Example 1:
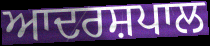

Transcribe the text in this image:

ਆਦਰਸ਼ਪਾਲ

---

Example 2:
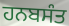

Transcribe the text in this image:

ਹਨਬਸੰਤ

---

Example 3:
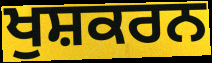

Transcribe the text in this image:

ਖੁਸ਼ਕਰਨ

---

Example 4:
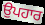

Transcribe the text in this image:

ਉਪਹਾਰ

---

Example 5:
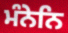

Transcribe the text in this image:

ਮੰਨੇਨਿ